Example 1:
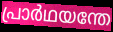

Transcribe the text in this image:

പ്രാർഥയന്തേ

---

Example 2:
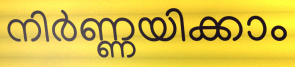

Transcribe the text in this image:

നിർണ്ണയിക്കാം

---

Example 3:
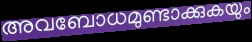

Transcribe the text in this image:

അവബോധമുണ്ടാക്കുകയും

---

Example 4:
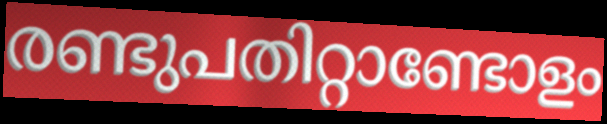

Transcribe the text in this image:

രണ്ടുപതിറ്റാണ്ടോളം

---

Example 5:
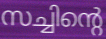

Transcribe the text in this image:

സച്ചിന്റെ